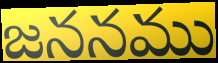
జననము